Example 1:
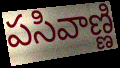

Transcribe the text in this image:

పసివాణ్ణి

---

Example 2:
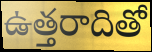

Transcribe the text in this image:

ఉత్తరాదితో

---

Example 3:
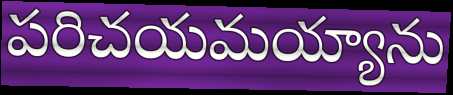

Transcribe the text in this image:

పరిచయమయ్యాను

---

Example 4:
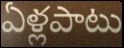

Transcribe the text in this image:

ఏళ్లపాటు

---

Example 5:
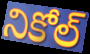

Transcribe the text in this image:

నికోల్